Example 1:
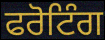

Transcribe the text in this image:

ਫਰੋਟਿੰਗ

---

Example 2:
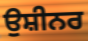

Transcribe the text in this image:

ਉਸ਼ੀਨਰ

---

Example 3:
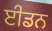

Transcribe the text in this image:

ਈਡਨ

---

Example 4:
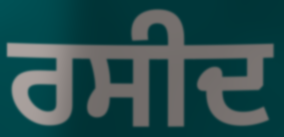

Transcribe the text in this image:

ਰਸੀਦ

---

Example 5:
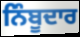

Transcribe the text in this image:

ਨਿੰਬੂਦਾਰ